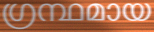
ഗ്രന്ഥമായ